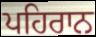
ਪਹਿਰਾਨ